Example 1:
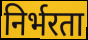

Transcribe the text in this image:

निर्भरता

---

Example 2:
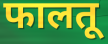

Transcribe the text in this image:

फालतू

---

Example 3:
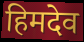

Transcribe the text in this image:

हिमदेव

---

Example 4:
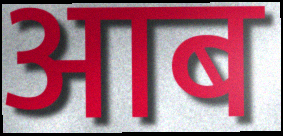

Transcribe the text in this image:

आब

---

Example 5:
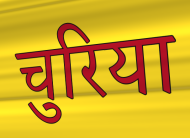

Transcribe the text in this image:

चुरिया